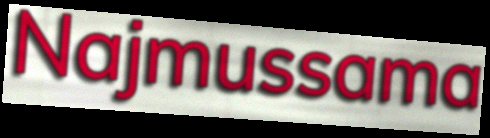
Najmussama